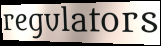
regulators